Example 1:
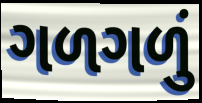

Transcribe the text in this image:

ગળગળું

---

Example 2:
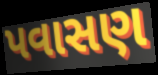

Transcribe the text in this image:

પવાસણ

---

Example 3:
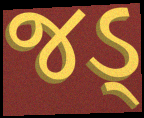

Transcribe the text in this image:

જડ્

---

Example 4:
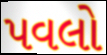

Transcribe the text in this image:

પવલો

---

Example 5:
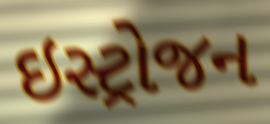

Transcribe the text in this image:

ઇસ્ટ્રોજન